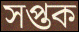
সপ্তক